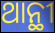
ଥାନ୍ଥୀ